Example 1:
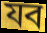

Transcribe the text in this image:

যব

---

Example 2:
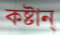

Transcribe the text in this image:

কষ্টান্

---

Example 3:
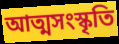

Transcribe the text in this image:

আত্মসংস্কৃতি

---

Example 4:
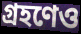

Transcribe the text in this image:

গ্রহণেও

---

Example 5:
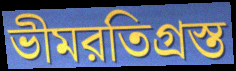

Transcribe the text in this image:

ভীমরতিগ্রস্ত